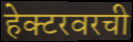
हेक्टरवरची